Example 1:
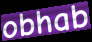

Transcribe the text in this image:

obhab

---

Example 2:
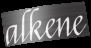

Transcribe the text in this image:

alkene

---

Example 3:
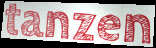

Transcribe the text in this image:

tanzen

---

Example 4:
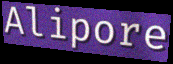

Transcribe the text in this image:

Alipore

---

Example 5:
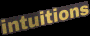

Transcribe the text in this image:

intuitions